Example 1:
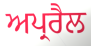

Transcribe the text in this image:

ਅਪ੍ਰਰੈਲ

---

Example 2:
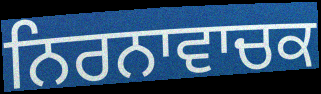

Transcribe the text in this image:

ਨਿਰਨਾਵਾਚਕ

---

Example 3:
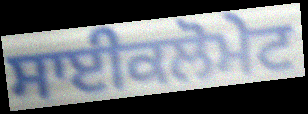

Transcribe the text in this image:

ਸਾਈਕਲੋਮੇਟ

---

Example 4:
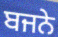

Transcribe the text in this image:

ਬਜਨੇ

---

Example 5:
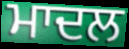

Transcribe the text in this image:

ਮਾਦਲ